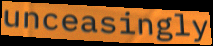
unceasingly